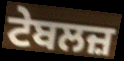
ਟੇਬਲਜ਼